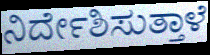
ನಿರ್ದೇಶಿಸುತ್ತಾಳೆ